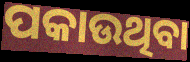
ପକାଉଥିବା